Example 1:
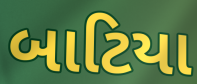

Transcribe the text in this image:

બાટિયા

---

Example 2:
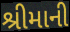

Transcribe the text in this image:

શ્રીમાની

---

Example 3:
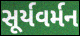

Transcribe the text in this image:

સૂર્યવર્મન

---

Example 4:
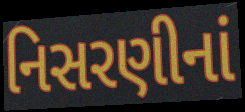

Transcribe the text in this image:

નિસરણીનાં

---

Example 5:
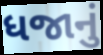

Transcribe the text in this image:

ધજાનું